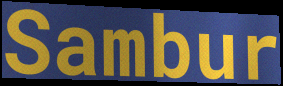
Sambur